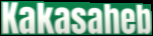
Kakasaheb